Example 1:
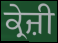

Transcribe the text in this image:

ਕ੍ਰੇਜ਼ੀ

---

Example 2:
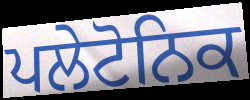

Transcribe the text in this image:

ਪਲੇਟੋਨਿਕ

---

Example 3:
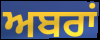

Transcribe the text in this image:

ਅਬਰਾਂ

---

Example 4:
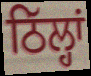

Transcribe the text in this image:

ਠਿੱਲ੍ਹਾਂ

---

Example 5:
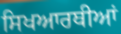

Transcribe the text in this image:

ਸਿਖਆਰਥੀਆਂ